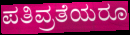
ಪತಿವ್ರತೆಯರೂ